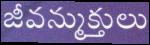
జీవన్ముక్తులు